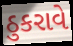
ઠુકરાવે